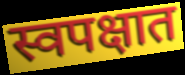
स्वपक्षात